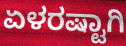
ಏಳರಷ್ಟಾಗಿ